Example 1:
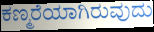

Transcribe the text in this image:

ಕಣ್ಮರೆಯಾಗಿರುವುದು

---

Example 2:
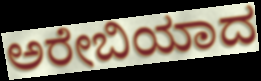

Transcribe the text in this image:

ಅರೇಬಿಯಾದ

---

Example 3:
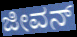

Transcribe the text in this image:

ಜೀವನ್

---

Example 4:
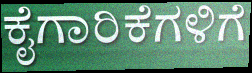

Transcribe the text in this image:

ಕೈಗಾರಿಕೆಗಳಿಗೆ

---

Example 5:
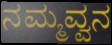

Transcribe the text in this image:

ನಮ್ಮವ್ವನ